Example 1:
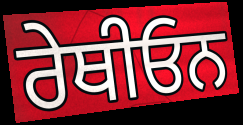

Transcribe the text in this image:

ਰੇਥੀਓਨ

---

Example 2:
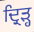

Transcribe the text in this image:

ਦ੍ਰਿੜ੍ਹ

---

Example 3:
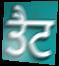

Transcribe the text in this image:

ਤੈਟ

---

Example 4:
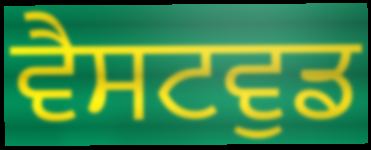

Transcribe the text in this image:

ਵੈਸਟਵੁਡ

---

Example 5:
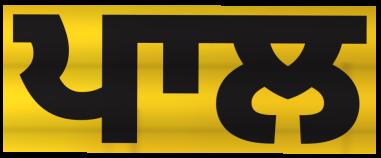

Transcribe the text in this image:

ਪਾਲ